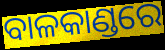
ବାଳକାଣ୍ଡରେ